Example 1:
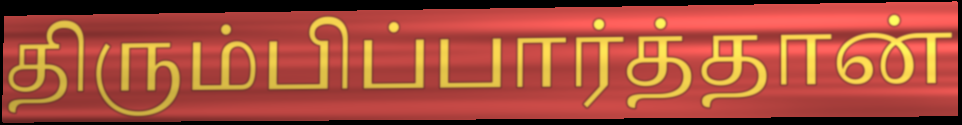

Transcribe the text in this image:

திரும்பிப்பார்த்தான்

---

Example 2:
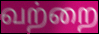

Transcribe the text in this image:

வற்றை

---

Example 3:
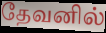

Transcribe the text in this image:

தேவனில்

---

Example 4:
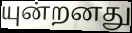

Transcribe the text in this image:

யுன்றனது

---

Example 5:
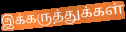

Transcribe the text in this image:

இக்கருத்துக்கள்